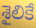
శైలికే